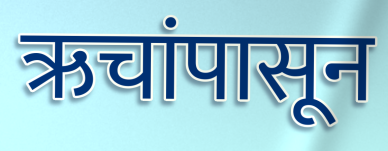
ऋचांपासून